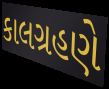
કાલગ્રહણે